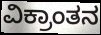
ವಿಕ್ರಾಂತನ